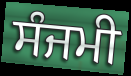
ਸੰਜਮੀ